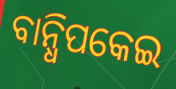
ବାନ୍ଧିପକେଇ